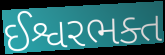
ઈશ્વરભક્ત